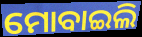
ମୋବାଇଲି